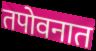
तपोवनात